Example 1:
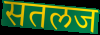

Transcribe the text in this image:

सतलज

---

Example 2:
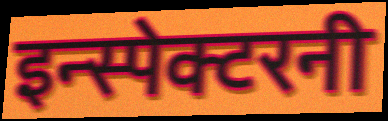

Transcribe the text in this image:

इन्स्पेक्टरनी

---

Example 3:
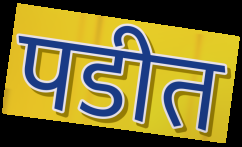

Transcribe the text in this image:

पडीत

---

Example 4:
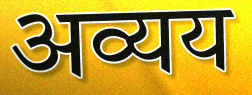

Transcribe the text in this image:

अव्यय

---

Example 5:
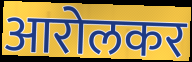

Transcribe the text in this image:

आरोलकर